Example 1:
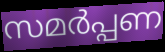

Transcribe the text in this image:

സമർപ്പണ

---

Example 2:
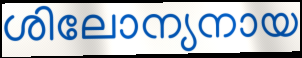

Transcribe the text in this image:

ശിലോന്യനായ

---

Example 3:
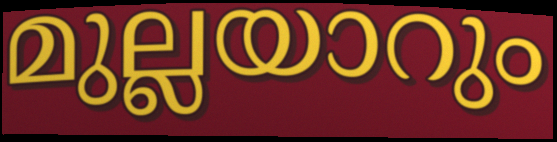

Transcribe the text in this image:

മുല്ലയാറും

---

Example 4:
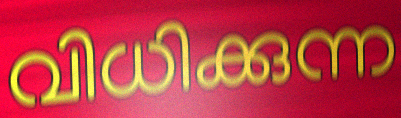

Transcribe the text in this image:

വിധിക്കുന്ന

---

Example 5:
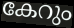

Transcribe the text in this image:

കേറും